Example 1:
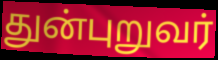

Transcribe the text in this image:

துன்புறுவர்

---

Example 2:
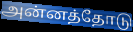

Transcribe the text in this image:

அன்னத்தோடு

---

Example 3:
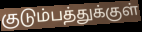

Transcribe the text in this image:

குடும்பத்துக்குள்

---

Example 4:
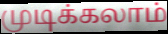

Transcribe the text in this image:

முடிக்கலாம்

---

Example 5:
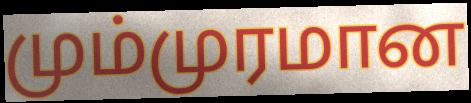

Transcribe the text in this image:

மும்முரமான